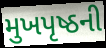
મુખપૃષ્ઠની